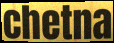
chetna